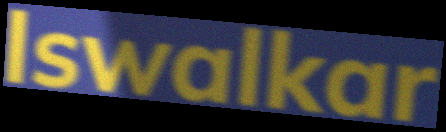
Iswalkar